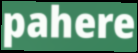
pahere